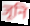
जूनि